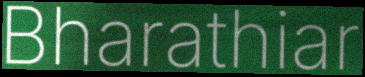
Bharathiar